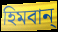
হিমবান্